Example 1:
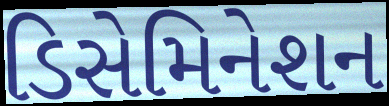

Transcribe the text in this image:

ડિસેમિનેશન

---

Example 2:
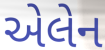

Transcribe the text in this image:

એલેન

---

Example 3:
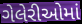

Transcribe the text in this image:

ગેલેરીઓમાં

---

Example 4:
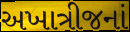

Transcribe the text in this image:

અખાત્રીજનાં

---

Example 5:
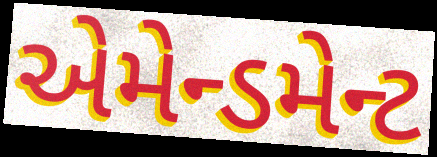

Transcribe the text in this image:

એમેન્ડમેન્ટ